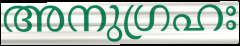
അനുഗ്രഹഃ